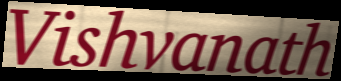
Vishvanath